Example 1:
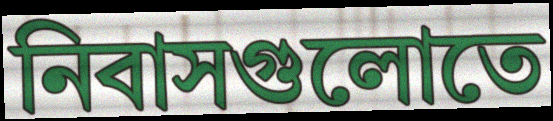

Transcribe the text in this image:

নিবাসগুলোতে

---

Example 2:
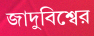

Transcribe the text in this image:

জাদুবিশ্বের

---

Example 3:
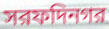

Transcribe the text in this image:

সরফদিনগর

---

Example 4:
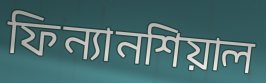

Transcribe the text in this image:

ফিন্যানশিয়াল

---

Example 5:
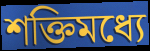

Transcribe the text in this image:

শক্তিমধ্যে